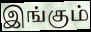
இங்கும்